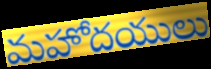
మహోదయులు